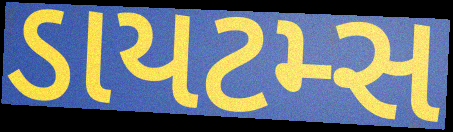
ડાયટમ્સ